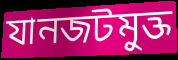
যানজটমুক্ত